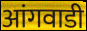
आंगवाडी